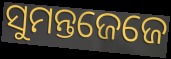
ସୁମନ୍ତଜେଜେ